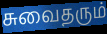
சுவைதரும்